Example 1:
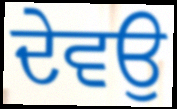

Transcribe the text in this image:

ਦੇਵਉ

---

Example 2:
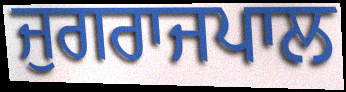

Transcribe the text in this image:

ਜੁਗਰਾਜਪਾਲ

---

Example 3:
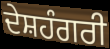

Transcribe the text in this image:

ਦੇਸ਼ਹੰਗਰੀ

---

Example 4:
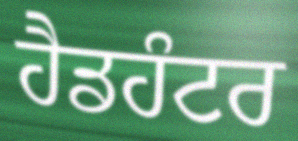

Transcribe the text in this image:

ਹੈਡਹੰਟਰ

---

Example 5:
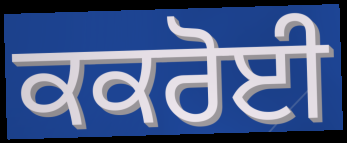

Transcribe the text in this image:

ਕਕਰੋਈ